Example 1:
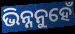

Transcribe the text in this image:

ଭିନ୍ନନୁହେଁ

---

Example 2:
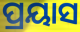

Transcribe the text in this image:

ପ୍ରୟାସ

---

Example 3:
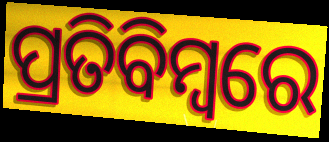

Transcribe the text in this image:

ପ୍ରତିବିମ୍ବରେ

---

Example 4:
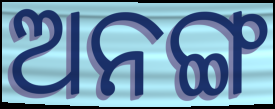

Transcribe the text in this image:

ଅନଙ୍ଗ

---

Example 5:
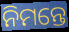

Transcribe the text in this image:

ନିମନ୍ତେ